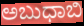
ಅಬುಧಾಬಿ